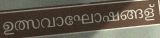
ഉത്സവാഘോഷങ്ങള്